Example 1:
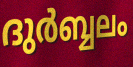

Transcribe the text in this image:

ദുർബ്ബലം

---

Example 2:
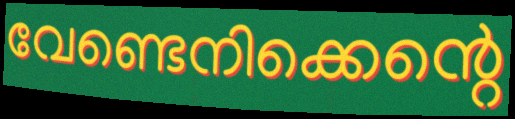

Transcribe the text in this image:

വേണ്ടെനിക്കെന്റെ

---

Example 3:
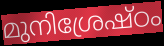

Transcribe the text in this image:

മുനിശ്രേഷ്ഠം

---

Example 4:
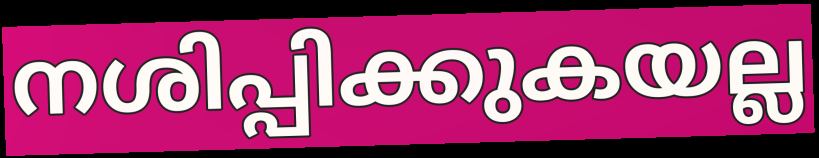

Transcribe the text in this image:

നശിപ്പിക്കുകയല്ല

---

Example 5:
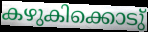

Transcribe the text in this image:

കഴുകിക്കൊടു്